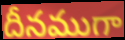
దీనముగా